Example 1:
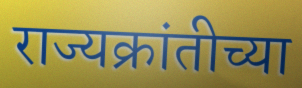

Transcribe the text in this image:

राज्यक्रांतीच्या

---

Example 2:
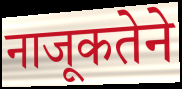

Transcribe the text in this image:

नाजूकतेने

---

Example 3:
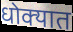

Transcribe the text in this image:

धोक्‍यात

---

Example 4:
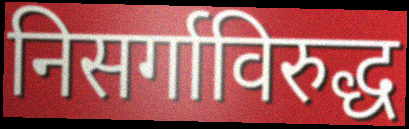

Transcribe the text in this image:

निसर्गाविरुद्ध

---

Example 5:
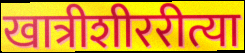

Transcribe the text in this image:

खात्रीशीररीत्या